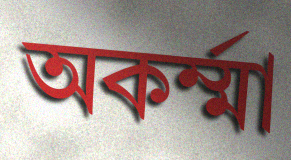
অকর্ম্মা